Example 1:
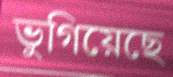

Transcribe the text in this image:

ভুগিয়েছে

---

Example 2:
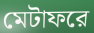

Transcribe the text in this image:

মেটাফরে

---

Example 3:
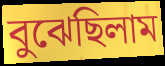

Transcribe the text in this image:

বুঝেছিলাম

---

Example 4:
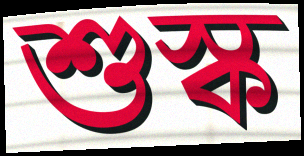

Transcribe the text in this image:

শুস্ক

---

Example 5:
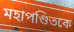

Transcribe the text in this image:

মহাপণ্ডিতকে